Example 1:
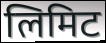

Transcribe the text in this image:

लिमिट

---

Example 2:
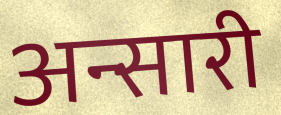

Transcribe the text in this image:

अन्सारी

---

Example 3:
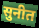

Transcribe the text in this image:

सुनीत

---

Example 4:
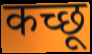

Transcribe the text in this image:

कच्छू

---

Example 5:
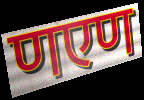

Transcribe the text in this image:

णएण